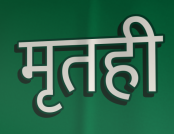
मृतही